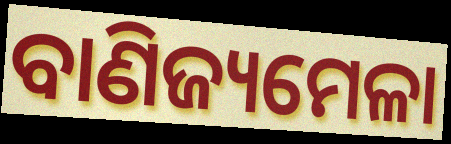
ବାଣିଜ୍ୟମେଳା